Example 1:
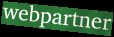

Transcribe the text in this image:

webpartner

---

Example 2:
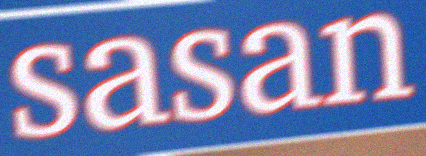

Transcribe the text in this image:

sasan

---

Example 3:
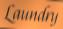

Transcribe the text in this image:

Laundry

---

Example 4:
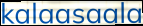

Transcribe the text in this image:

kalaasaala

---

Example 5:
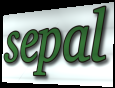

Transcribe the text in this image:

sepal